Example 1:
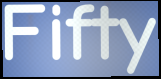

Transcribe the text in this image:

Fifty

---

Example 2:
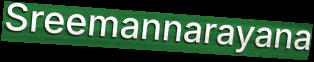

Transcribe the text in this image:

Sreemannarayana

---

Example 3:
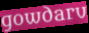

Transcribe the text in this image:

gowdaru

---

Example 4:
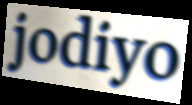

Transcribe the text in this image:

jodiyo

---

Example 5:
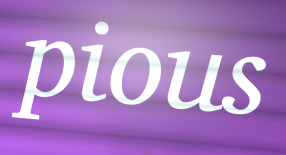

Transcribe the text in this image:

pious